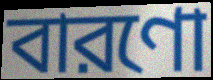
বারণো